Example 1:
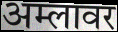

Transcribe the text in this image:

अम्लावर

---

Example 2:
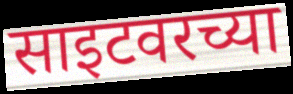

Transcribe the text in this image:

साइटवरच्या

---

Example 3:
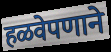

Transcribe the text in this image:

हळवेपणाने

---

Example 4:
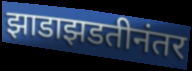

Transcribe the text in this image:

झाडाझडतीनंतर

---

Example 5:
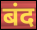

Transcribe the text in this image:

बंद